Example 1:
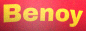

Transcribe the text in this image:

Benoy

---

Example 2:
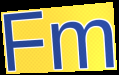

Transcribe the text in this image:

Fm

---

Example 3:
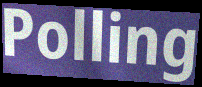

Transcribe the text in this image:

Polling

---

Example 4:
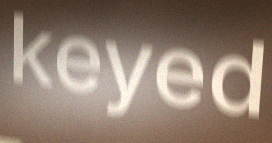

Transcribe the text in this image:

keyed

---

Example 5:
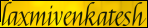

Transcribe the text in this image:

laxmivenkatesh